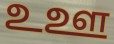
உஊ